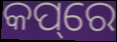
କପ୍‌ରେ